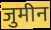
जुमीन